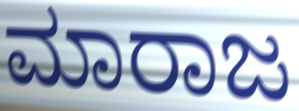
ಮಾರಾಜ